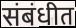
संबंधीत